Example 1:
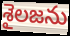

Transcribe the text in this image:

శైలజను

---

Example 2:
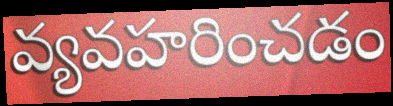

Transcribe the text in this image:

వ్యవహరించడం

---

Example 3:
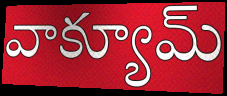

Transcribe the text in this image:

వాక్యూమ్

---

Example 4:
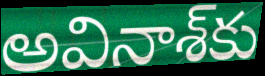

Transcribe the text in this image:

అవినాశ్‌కు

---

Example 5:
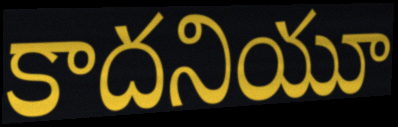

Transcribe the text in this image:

కాదనియూ